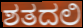
ಶತದಲಿ